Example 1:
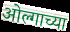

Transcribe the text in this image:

ओल्गाच्या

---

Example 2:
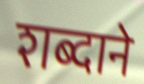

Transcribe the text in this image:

शब्दाने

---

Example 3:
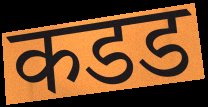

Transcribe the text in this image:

कडड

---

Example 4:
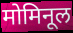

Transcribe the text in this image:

मोमिनूल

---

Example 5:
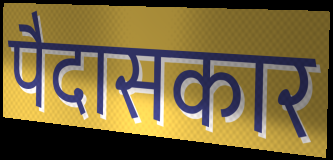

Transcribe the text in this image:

पैदासकार